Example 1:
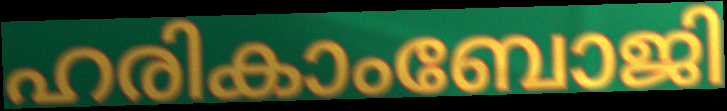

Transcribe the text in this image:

ഹരികാംബോജി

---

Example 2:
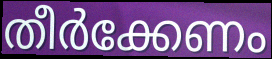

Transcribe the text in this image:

തീർക്കേണം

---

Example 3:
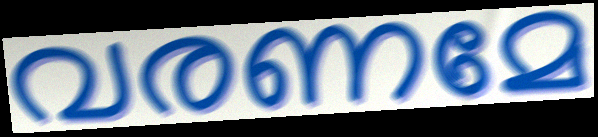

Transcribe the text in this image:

വരണമേ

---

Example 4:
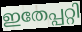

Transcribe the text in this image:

ഇതേപ്പറ്റി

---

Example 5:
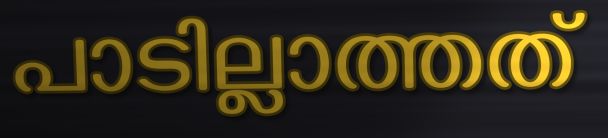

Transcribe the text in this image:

പാടില്ലാത്തത്